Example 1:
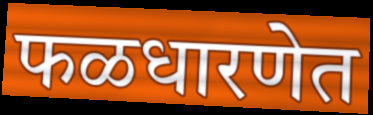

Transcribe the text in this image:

फळधारणेत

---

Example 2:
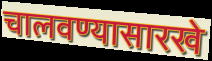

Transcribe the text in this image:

चालवण्यासारखे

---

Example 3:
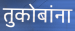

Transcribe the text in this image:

तुकोबांना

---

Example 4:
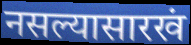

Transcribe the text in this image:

नसल्यासारखं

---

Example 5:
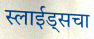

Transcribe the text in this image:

स्लाईड्सचा